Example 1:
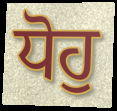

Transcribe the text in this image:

ਧੋਹੁ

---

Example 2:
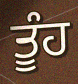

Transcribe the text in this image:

ਤੂੰਹ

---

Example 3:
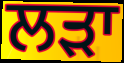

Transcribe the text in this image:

ਲੜਾ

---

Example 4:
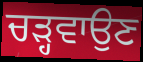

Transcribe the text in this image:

ਚੜ੍ਹਵਾਉਣ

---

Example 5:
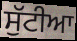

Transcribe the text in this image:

ਸੁੱਟੀਆ